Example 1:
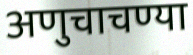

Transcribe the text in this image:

अणुचाचण्या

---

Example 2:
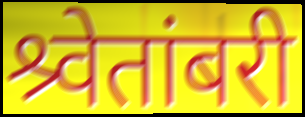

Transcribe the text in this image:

श्र्वेतांबरी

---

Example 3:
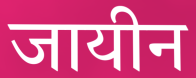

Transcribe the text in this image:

जायीन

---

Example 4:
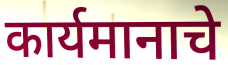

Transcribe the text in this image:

कार्यमानाचे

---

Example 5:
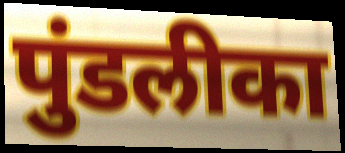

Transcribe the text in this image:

पुंडलीका